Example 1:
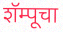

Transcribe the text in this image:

शॅम्पूचा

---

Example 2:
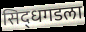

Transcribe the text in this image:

सिद्धगडला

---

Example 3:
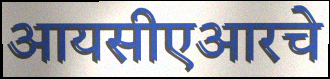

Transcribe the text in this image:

आयसीएआरचे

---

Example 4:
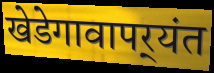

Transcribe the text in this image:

खेडेगावापर्यंत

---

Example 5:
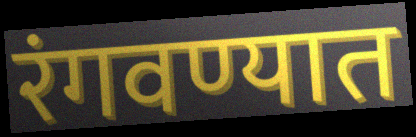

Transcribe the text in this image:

रंगवण्यात